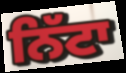
ਨਿੱਟਾ